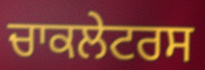
ਚਾਕਲੇਟਰਸ